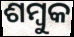
ଶମ୍ବୁକ